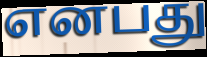
எனபது